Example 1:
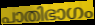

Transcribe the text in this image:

പാതിഭാഗം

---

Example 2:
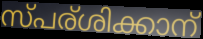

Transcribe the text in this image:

സ്പര്ശിക്കാന്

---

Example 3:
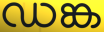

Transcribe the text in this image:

ഡങ്ക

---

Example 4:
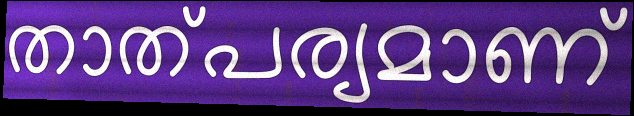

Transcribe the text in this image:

താത്പര്യമാണ്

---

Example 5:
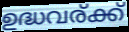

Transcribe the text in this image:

ഉദ്ധവര്ക്ക്